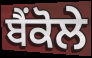
ਬੈਂਕੋਲੇ